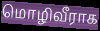
மொழிவீராக